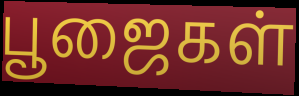
பூஜைகள்